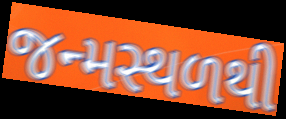
જન્મસ્થળથી